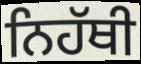
ਨਿਹੱਥੀ